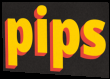
pips